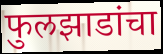
फुलझाडांचा